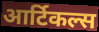
आर्टिकल्स